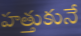
హత్తుకునే